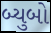
બ્યુબો